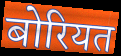
बोरियत